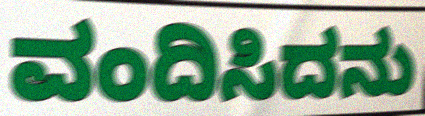
ವಂದಿಸಿದನು